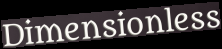
Dimensionless